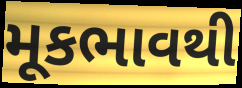
મૂકભાવથી